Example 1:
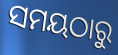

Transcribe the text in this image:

ସମୟଠାରୁ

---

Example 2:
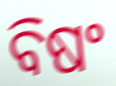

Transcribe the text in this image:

ବିଷଂ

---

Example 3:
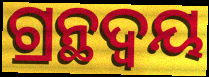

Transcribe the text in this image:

ଗ୍ରନ୍ଥଦ୍ଵୟ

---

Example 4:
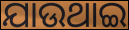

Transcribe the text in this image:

ଯାଉଥାଇ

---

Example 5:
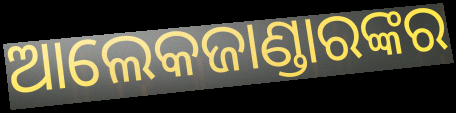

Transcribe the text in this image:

ଆଲେକଜାଣ୍ଡାରଙ୍କର